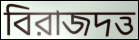
বিরাজদত্ত